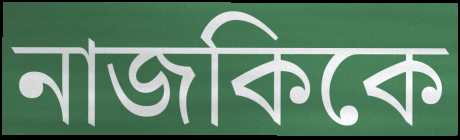
নাজকিকে